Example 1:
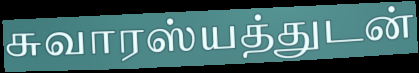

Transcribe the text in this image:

சுவாரஸ்யத்துடன்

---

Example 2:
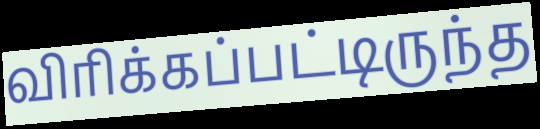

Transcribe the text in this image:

விரிக்கப்பட்டிருந்த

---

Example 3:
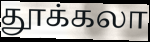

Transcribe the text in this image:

தூக்கலா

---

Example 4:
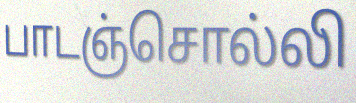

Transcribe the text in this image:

பாடஞ்சொல்லி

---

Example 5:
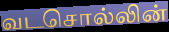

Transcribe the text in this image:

வடசொல்லின்